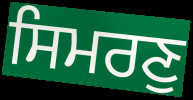
ਸਿਮਰਣੁ